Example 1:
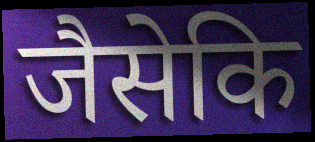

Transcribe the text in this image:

जैसेकि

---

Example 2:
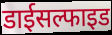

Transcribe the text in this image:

डाईसल्फाइड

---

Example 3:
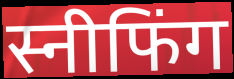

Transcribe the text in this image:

स्नीफिंग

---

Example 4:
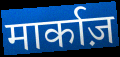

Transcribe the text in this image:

मार्काज़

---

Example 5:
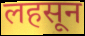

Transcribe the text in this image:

लहसून